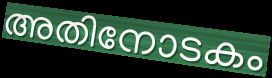
അതിനോടകം